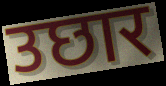
उछार